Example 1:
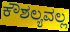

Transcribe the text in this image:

ಕೌಶಲ್ಯವಲ್ಲ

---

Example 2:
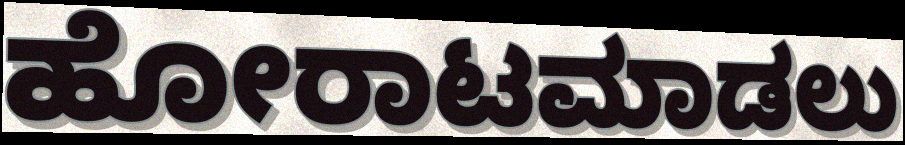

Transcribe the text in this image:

ಹೋರಾಟಮಾಡಲು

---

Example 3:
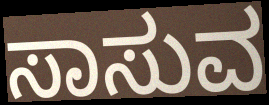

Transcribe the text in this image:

ಸಾಸುವ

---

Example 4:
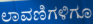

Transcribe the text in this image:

ಲಾವಣಿಗಳಿಗೂ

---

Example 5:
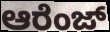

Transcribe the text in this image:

ಆರೆಂಜ್